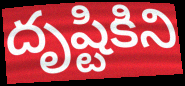
దృష్టికిని